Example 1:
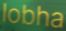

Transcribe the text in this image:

lobha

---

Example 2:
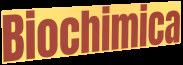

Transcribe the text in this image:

Biochimica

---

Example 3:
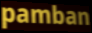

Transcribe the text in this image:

pamban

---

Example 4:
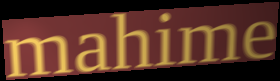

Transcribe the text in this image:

mahime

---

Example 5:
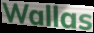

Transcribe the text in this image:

Wallas